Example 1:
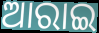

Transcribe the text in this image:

ଆରାଇ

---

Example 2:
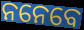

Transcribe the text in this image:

ନନେବେ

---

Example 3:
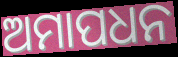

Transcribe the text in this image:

ଅମାପଧନ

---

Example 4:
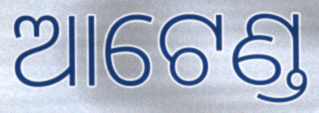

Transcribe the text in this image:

ଆଟେଣ୍ଡ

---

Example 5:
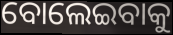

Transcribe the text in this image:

ବୋଲେଇବାକୁ